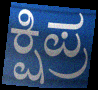
ಕ್ಷಿಪ್ರ